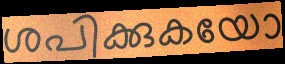
ശപിക്കുകയോ